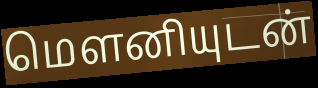
மௌனியுடன்